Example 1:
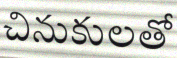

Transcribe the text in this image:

చినుకులతో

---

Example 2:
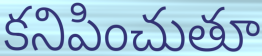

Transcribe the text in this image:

కనిపించుతూ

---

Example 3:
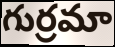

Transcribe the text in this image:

గుర్రమా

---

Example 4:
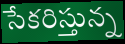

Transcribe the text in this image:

సేకరిస్తున్న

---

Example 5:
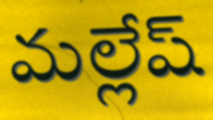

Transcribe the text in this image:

మల్లేష్